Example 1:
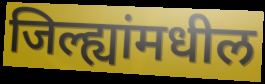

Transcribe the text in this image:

जिल्ह्यांमधील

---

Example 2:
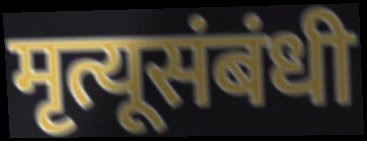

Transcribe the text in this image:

मृत्यूसंबंधी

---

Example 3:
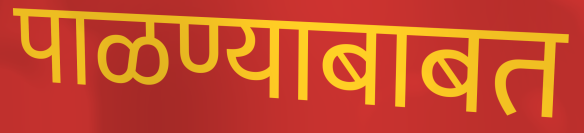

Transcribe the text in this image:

पाळण्याबाबत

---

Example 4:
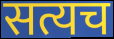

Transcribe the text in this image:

सत्यच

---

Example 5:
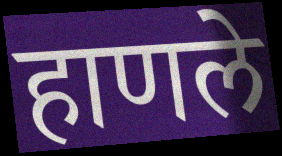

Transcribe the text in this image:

हाणले